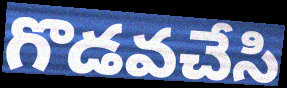
గొడవచేసి